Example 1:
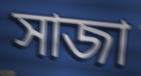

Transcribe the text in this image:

সাজা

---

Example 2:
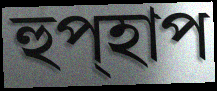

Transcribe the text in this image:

হুপ্হাপ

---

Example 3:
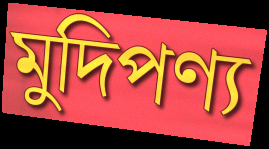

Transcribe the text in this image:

মুদিপণ্য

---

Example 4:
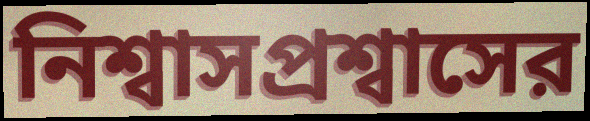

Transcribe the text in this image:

নিশ্বাসপ্রশ্বাসের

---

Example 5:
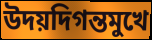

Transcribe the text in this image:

উদয়দিগন্তমুখে